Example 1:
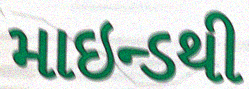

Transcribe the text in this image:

માઇન્ડથી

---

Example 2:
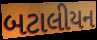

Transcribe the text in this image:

બટાલીયન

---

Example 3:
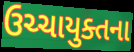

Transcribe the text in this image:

ઉચ્ચાયુક્તના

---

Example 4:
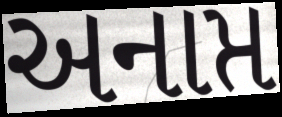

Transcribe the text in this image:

અનાપ્ત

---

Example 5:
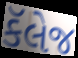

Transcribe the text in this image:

કૅલેજ